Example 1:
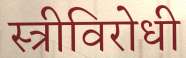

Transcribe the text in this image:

स्त्रीविरोधी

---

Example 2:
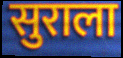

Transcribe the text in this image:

सुराला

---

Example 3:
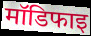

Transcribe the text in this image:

मॉडिफाइ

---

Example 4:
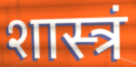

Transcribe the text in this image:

शास्त्रं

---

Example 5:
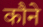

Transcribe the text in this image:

कौने